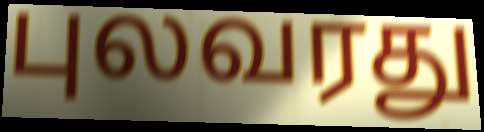
புலவரது